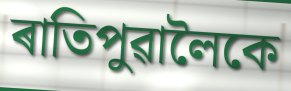
ৰাতিপুৱালৈকে